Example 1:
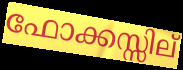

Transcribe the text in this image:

ഫോക്കസ്സില്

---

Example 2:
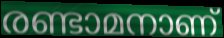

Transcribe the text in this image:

രണ്ടാമനാണ്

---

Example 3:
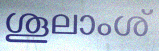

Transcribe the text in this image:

ശൂലാംശ്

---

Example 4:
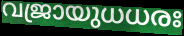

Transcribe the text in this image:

വജ്രായുധധരഃ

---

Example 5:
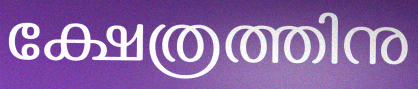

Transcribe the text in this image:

ക്ഷേത്രത്തിനു